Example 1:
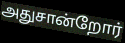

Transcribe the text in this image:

அதுசான்றோர்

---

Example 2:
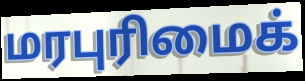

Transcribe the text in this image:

மரபுரிமைக்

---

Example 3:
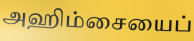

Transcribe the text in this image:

அஹிம்சையைப்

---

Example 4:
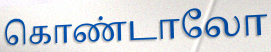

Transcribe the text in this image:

கொண்டாலோ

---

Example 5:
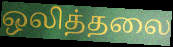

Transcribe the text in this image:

ஒலித்தலை